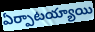
ఏర్పాటయ్యాయి